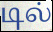
டில்